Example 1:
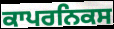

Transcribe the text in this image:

ਕਾਪਰਨਿਕਸ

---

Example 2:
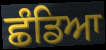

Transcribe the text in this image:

ਛੰਡਿਆ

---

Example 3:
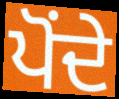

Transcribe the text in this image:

ਪੋਂਦੇ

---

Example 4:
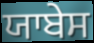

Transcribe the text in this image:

ਯਾਬੇਸ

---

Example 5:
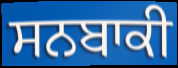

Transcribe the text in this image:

ਸਨਬਾਕੀ